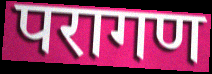
परागण